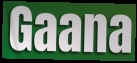
Gaana